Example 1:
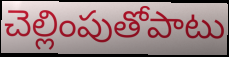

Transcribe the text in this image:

చెల్లింపుతోపాటు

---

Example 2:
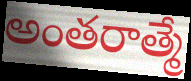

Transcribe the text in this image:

అంతరాత్మే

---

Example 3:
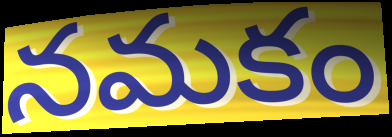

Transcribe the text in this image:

నమకం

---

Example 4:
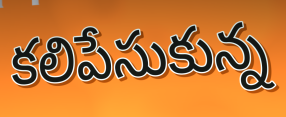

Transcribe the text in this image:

కలిపేసుకున్న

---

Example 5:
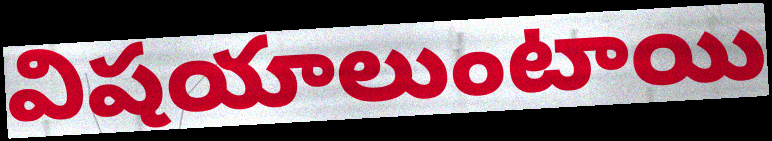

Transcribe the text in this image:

విషయాలుంటాయి